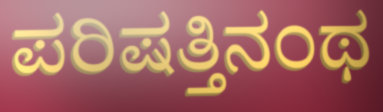
ಪರಿಷತ್ತಿನಂಥ